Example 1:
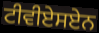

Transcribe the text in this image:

ਟੀਵੀਏਸਏਨ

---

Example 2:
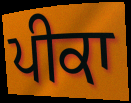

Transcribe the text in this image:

ਪੀਕਾ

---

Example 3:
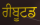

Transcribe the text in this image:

ਰੀਬੂਟਡ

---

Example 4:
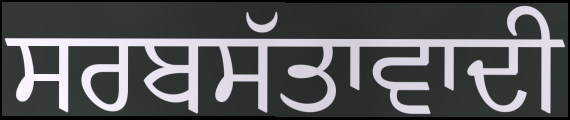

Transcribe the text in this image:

ਸਰਬਸੱਤਾਵਾਦੀ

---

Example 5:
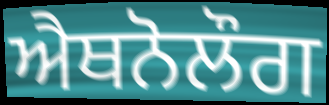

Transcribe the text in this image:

ਐਥਨੋਲੌਗ